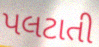
પલટાતી